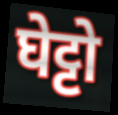
घेट्टो